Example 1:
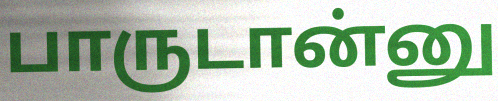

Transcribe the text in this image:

பாருடான்னு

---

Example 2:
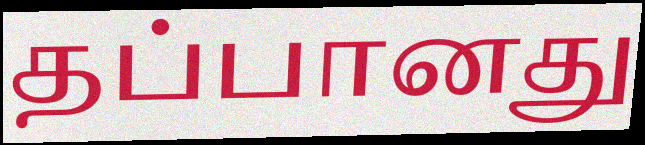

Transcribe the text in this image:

தப்பானது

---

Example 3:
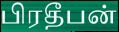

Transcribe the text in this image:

பிரதீபன்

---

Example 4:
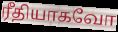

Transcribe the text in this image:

ரீதியாகவோ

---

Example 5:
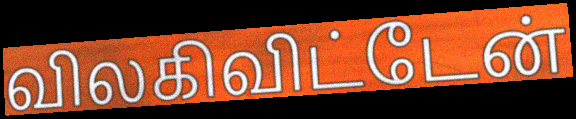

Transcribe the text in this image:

விலகிவிட்டேன்